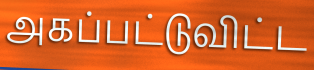
அகப்பட்டுவிட்ட